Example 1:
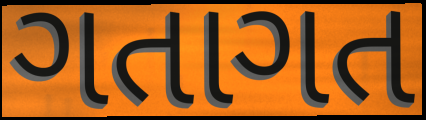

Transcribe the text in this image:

ગતાગત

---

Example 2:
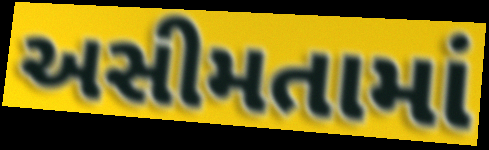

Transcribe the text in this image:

અસીમતામાં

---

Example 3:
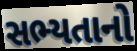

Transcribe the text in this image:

સભ્યતાનો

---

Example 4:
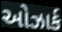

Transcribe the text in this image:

ઓઝાર્ક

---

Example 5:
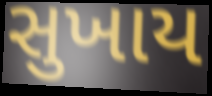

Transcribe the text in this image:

સુખાય